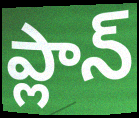
ప్లాన్